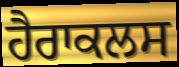
ਹੈਰਾਕਲਸ